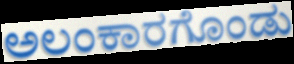
ಅಲಂಕಾರಗೊಂಡು